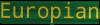
Europian